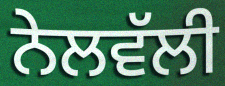
ਨੇਲਵੱਲੀ